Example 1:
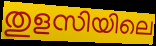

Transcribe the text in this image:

തുളസിയിലെ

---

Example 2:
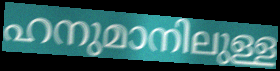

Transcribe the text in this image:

ഹനുമാനിലുള്ള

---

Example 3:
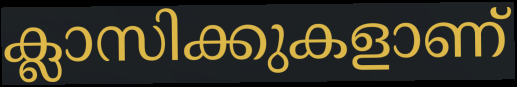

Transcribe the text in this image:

ക്ലാസിക്കുകളാണ്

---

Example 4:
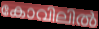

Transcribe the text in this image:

കോവിലിൽ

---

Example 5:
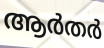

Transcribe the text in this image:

ആർതർ